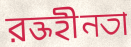
রক্তহীনতা